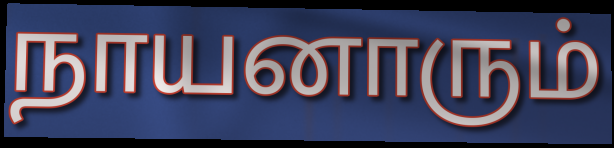
நாயனாரும்